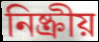
নিষ্ক্রীয়